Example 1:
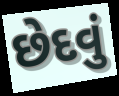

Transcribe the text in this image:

છેદવું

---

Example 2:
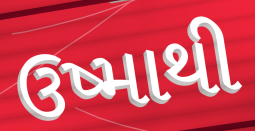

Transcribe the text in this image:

ઉષ્માથી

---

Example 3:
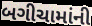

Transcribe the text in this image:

બગીચામાંની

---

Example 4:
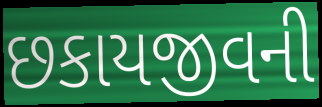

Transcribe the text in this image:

છકાયજીવની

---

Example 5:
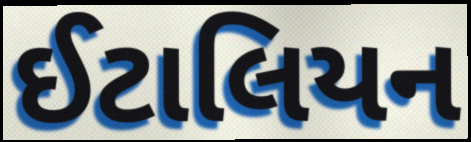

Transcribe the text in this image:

ઈટાલિયન